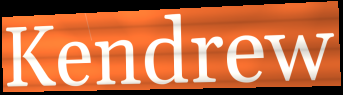
Kendrew